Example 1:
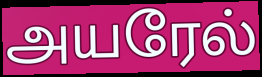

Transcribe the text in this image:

அயரேல்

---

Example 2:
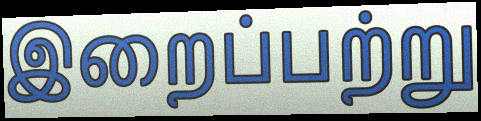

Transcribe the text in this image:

இறைப்பற்று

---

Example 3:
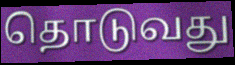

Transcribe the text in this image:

தொடுவது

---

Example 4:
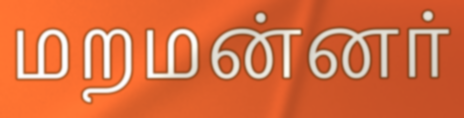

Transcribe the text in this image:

மறமன்னர்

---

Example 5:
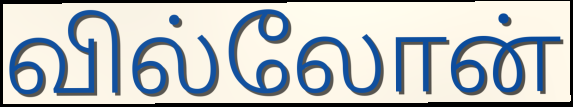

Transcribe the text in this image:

வில்லோன்